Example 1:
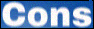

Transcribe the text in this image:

Cons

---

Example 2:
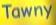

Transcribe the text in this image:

Tawny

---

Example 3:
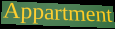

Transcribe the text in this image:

Appartment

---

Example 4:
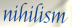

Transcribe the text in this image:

nihilism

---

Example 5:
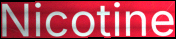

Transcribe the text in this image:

Nicotine